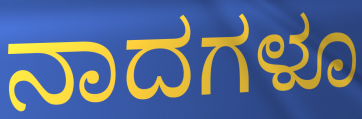
ನಾದಗಳೂ